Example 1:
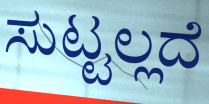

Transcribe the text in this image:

ಸುಟ್ಟಲ್ಲದೆ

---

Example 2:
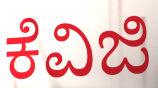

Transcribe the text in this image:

ಕೆವಿಜಿ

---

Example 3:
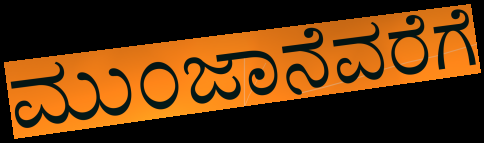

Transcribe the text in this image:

ಮುಂಜಾನೆವರೆಗೆ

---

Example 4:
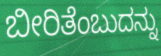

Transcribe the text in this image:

ಬೀರಿತೆಂಬುದನ್ನು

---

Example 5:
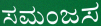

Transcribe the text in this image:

ಸಮಂಜಸ